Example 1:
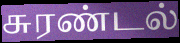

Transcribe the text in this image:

சுரண்டல்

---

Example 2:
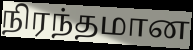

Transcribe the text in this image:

நிரந்தமான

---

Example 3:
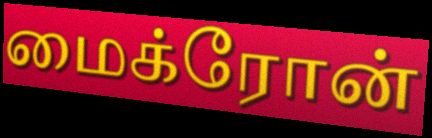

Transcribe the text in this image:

மைக்ரோன்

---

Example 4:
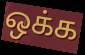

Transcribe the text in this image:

ஒக்க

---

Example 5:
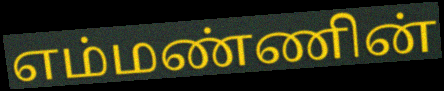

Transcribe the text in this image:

எம்மண்ணின்